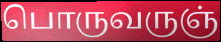
பொருவருஞ்